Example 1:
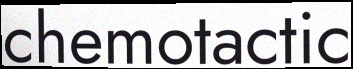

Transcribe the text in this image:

chemotactic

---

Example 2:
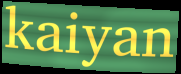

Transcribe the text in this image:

kaiyan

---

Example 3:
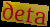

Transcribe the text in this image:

deta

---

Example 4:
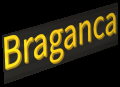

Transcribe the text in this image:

Braganca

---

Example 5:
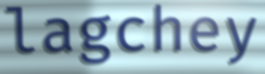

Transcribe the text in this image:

lagchey